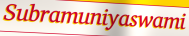
Subramuniyaswami